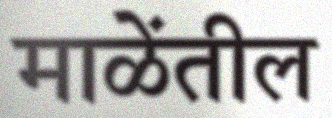
माळेंतील